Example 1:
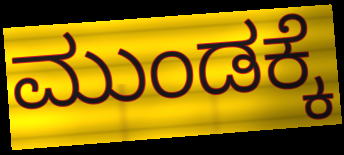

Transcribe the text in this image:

ಮುಂಡಕ್ಕೆ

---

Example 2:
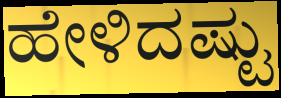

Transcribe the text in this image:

ಹೇಳಿದಷ್ಟು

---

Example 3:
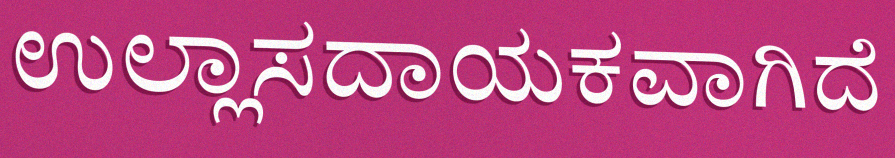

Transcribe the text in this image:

ಉಲ್ಲಾಸದಾಯಕವಾಗಿದೆ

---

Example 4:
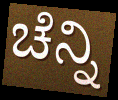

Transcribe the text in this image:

ಚೆನ್ನಿ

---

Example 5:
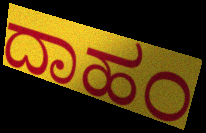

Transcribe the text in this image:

ದಾಹಂ